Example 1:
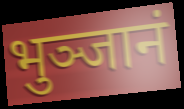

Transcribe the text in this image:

भुञ्जानं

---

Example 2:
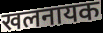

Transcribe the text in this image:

खलनायक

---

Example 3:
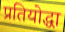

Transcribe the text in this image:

प्रतियोद्धा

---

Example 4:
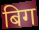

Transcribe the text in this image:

बिग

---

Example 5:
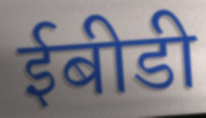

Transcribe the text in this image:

ईबीडी